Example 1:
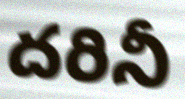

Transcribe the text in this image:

దరినీ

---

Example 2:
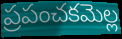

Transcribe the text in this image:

ప్రపంచకమెల్ల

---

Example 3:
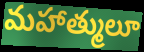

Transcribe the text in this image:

మహాత్ములూ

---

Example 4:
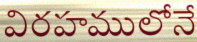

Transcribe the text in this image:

విరహములోనే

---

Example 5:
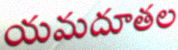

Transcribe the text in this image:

యమదూతల